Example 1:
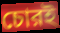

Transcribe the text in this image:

চোরই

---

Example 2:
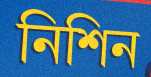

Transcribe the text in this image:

নিশিন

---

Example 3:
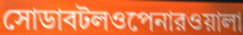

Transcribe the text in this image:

সোডাবটলওপেনারওয়ালা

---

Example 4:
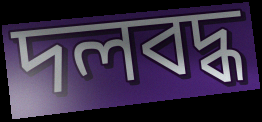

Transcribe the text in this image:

দলবদ্ধ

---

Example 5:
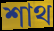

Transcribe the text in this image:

শাথ